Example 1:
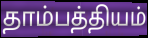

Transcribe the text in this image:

தாம்பத்தியம்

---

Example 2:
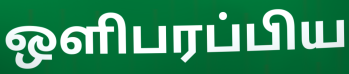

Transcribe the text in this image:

ஒளிபரப்பிய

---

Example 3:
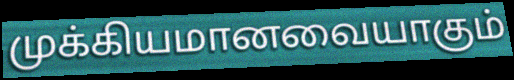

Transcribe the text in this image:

முக்கியமானவையாகும்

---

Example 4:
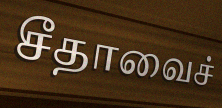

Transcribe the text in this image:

சீதாவைச்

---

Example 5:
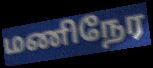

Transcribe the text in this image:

மணிநேர